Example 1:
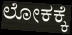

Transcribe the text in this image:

ಲೋಕಕ್ಕೆ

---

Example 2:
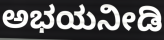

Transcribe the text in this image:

ಅಭಯನೀಡಿ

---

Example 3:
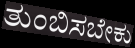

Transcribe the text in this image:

ತುಂಬಿಸಬೇಕು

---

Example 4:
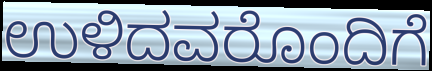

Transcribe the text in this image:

ಉಳಿದವರೊಂದಿಗೆ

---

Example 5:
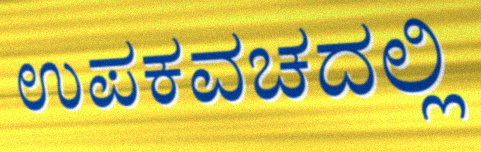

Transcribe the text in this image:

ಉಪಕವಚದಲ್ಲಿ